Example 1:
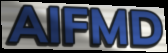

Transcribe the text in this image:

AIFMD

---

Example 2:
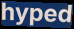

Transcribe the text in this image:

hyped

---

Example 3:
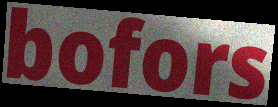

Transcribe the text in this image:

bofors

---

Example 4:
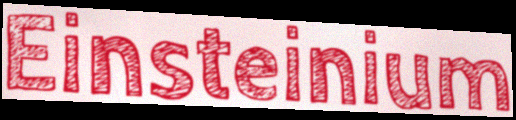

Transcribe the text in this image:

Einsteinium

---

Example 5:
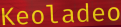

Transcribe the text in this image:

Keoladeo